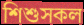
শিশুসকল